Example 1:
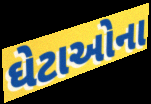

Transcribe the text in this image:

ઘેટાઓના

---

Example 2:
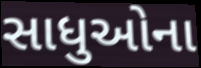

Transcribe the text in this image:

સાધુઓના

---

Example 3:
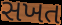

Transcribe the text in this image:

સખત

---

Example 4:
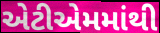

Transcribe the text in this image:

એટીએમમાંથી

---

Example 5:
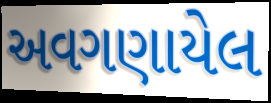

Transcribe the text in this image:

અવગણાયેલ